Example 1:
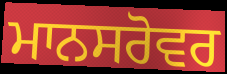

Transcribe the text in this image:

ਮਾਨਸਰੋਵਰ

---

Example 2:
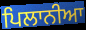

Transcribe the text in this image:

ਪਿਲਾਨੀਆ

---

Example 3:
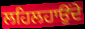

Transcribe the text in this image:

ਲਹਿਲਹਾਉਂਦੇ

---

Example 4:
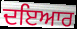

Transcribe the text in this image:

ਦਇਆਰ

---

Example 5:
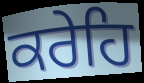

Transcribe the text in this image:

ਕਰੇਹਿ